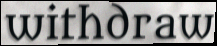
withdraw